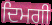
ਦਿਮਗੀ